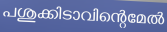
പശുക്കിടാവിന്റെമേൽ